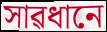
সাৱধানে